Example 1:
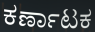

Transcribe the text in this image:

ಕರ್ಣಾಟಕ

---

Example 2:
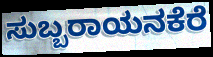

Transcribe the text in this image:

ಸುಬ್ಬರಾಯನಕೆರೆ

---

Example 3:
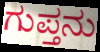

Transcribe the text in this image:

ಗುಪ್ತನು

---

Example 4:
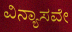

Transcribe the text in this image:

ವಿನ್ಯಾಸವೇ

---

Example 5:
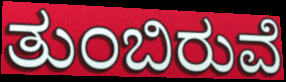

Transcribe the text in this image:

ತುಂಬಿರುವೆ